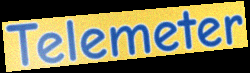
Telemeter